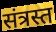
संत्रस्त